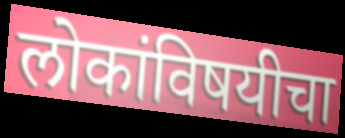
लोकांविषयीचा